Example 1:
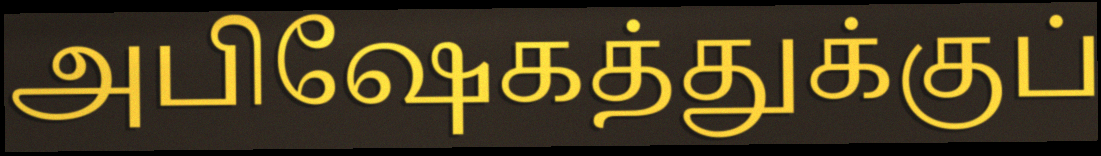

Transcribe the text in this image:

அபிஷேகத்துக்குப்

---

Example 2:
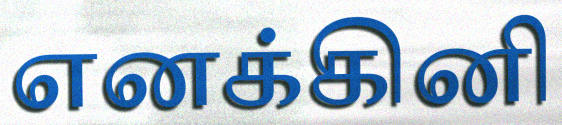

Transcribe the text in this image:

எனக்கினி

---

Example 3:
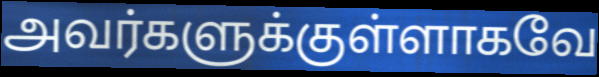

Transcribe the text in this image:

அவர்களுக்குள்ளாகவே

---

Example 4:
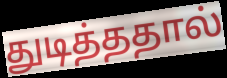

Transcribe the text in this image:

துடித்ததால்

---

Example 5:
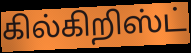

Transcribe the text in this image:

கில்கிறிஸ்ட்